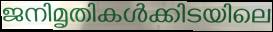
ജനിമൃതികൾക്കിടയിലെ